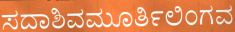
ಸದಾಶಿವಮೂರ್ತಿಲಿಂಗವ